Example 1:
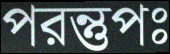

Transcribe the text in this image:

পরন্তুপঃ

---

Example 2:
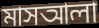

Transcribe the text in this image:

মাসআলা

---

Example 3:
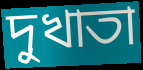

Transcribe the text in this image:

দুখাতা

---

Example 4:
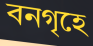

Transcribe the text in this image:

বনগৃহে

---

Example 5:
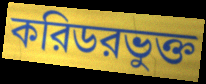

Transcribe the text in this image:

করিডরভুক্ত